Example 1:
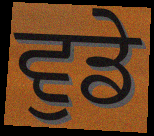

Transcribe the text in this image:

ਵੁਡੇ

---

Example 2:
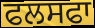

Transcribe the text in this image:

ਫਲਸਫਾ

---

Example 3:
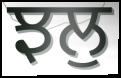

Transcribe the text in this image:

ਝਲੁ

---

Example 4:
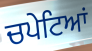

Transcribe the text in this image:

ਚਪੇਟਿਆਂ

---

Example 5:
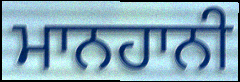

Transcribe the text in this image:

ਮਾਨਹਾਨੀ